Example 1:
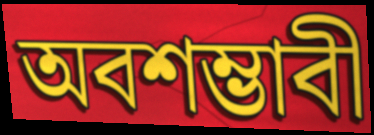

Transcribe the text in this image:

অবশম্ভাবী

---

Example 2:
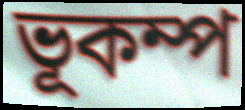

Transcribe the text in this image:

ভূকম্প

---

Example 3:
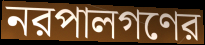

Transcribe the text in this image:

নরপালগণের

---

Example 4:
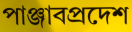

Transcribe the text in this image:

পাঞ্জাবপ্রদেশ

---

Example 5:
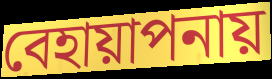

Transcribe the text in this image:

বেহায়াপনায়